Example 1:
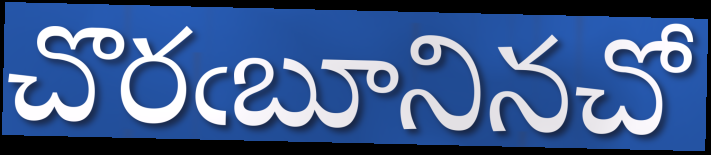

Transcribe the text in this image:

చొరఁబూనినచో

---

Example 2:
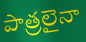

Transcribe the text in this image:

పాత్రలైనా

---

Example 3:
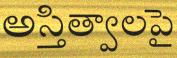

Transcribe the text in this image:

అస్తిత్వాలపై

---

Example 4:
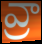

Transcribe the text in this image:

వ్రా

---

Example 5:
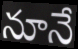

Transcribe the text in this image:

నూనే